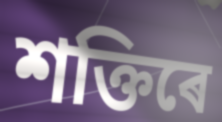
শক্তিৰে